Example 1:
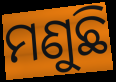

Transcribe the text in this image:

ମଣୁଛି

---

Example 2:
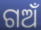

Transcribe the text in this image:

ଗଅଁ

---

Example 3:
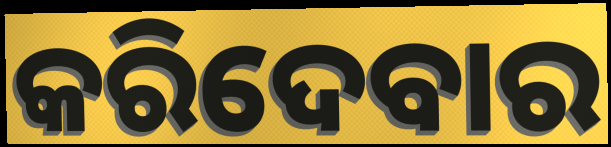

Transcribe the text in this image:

କରିଦେବାର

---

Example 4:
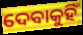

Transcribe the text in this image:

ଦେବାକୁହିଁ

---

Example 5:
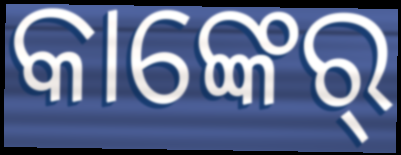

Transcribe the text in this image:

କାଙ୍କେର୍